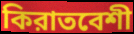
কিরাতবেশী